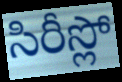
సిరీస్లో